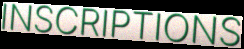
INSCRIPTIONS